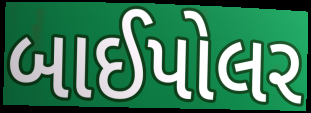
બાઈપોલર